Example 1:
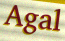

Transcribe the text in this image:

Agal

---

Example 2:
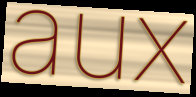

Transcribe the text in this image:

aux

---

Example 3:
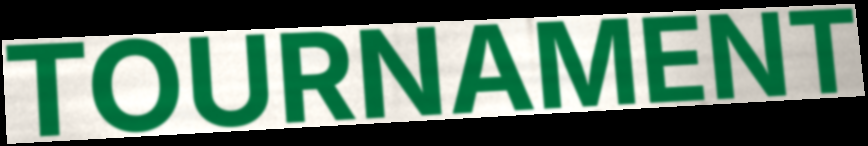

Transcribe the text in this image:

TOURNAMENT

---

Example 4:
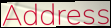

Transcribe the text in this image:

Address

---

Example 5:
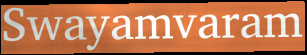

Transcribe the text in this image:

Swayamvaram